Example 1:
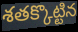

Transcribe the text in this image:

శతక్కొట్టిన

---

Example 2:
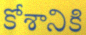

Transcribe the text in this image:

కోశానికి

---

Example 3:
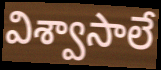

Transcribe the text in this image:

విశ్వాసాలే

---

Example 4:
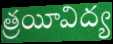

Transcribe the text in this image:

త్రయీవిద్య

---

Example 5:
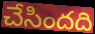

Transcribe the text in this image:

చేసిందది